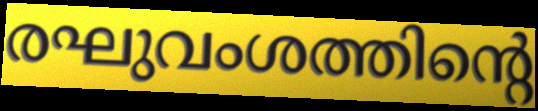
രഘുവംശത്തിന്റെ